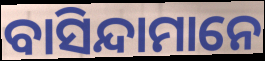
ବାସିନ୍ଦାମାନେ